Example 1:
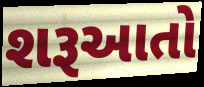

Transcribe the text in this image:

શરૂઆતો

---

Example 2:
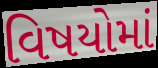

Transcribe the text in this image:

વિષયોમાં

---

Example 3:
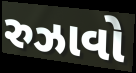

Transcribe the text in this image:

રુઝાવો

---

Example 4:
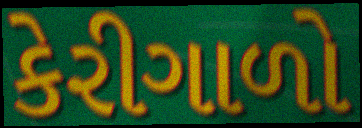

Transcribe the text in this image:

કેરીગાળો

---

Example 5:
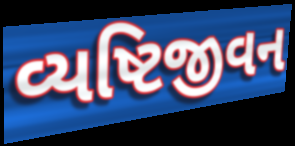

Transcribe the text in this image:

વ્યષ્ટિજીવન